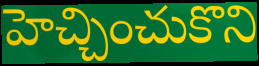
హెచ్చించుకొని